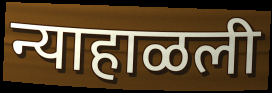
न्याहाळली